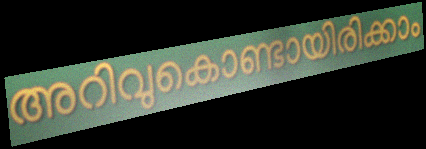
അറിവുകൊണ്ടായിരിക്കാം